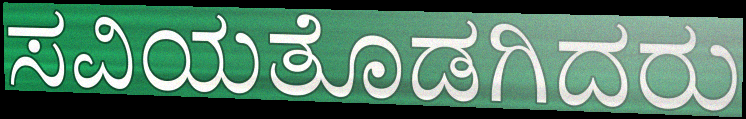
ಸವಿಯತೊಡಗಿದರು